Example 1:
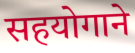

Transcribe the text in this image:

सहयोगाने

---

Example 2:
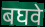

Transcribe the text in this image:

बघवे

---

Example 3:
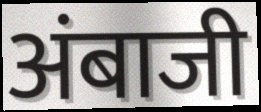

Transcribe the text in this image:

अंबाजी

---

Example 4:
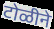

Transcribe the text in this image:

टोळीने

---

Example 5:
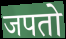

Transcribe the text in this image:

जपतो